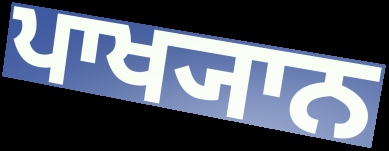
ਪਾਖ੍ਯਾਨ